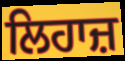
ਲਿਹਾਜ਼